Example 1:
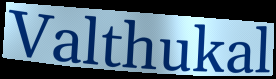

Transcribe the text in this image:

Valthukal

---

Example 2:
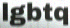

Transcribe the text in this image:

lgbtq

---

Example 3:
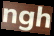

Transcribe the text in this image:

ngh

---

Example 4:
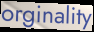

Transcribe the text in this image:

orginality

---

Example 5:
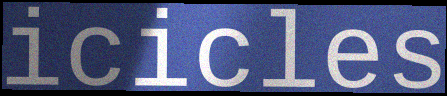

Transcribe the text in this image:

icicles